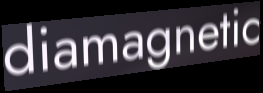
diamagnetic